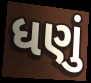
ધણું